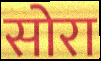
सोरा